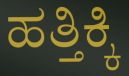
ಹತ್ತಿಕ್ಕಿ